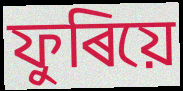
ফুৰিয়ে